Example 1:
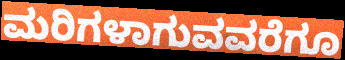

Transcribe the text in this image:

ಮರಿಗಳಾಗುವವರೆಗೂ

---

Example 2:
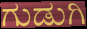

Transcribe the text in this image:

ಗುಡುಗಿ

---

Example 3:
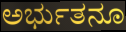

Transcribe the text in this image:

ಅರ್ಭುತನೂ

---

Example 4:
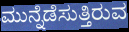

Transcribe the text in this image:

ಮುನ್ನೆಡೆಸುತ್ತಿರುವ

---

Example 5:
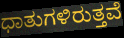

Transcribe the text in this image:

ಧಾತುಗಳಿರುತ್ತವೆ